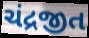
ચંદ્રજીત